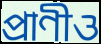
প্রাণীও